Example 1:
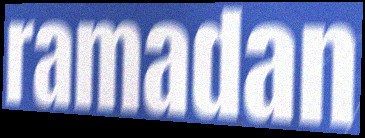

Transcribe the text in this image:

ramadan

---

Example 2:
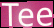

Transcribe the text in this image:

Tee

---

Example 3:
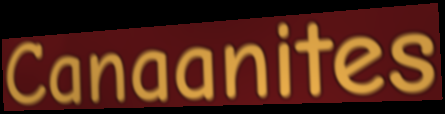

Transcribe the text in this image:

Canaanites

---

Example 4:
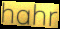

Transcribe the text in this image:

hahr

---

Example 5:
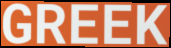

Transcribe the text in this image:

GREEK